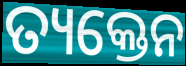
ତ୍ୟକ୍ତେନ